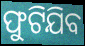
ଫୁଟିଯିବ